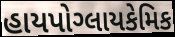
હાયપોગ્લાયકેમિક